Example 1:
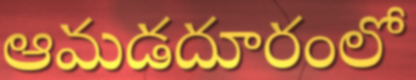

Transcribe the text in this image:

ఆమడదూరంలో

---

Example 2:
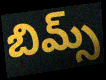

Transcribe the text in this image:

బిమ్స్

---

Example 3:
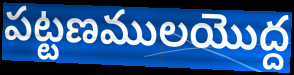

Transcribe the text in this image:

పట్టణములయొద్ద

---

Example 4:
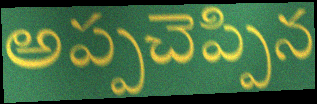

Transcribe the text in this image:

అప్పచెప్పిన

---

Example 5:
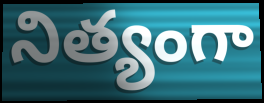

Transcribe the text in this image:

నిత్యంగా